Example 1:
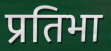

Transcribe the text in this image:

प्रतिभा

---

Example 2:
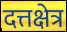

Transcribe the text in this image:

दत्तक्षेत्र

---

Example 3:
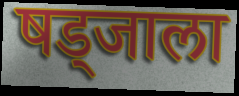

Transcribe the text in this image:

षड्जाला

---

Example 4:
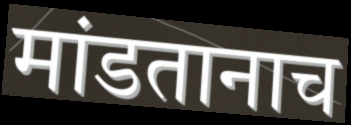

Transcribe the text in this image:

मांडतानाच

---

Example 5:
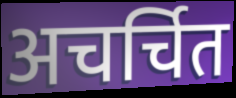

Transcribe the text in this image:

अचर्चित